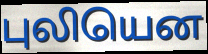
புலியென